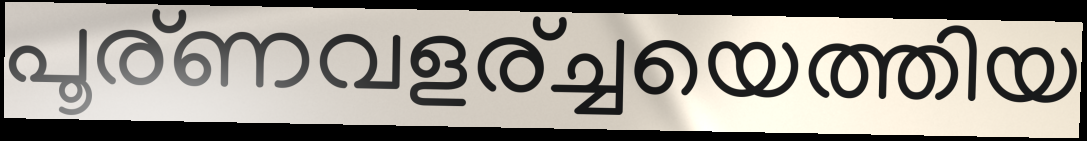
പൂര്ണവളര്ച്ചയെത്തിയ